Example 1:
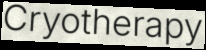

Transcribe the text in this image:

Cryotherapy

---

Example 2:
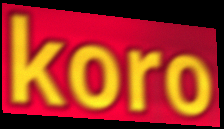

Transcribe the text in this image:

koro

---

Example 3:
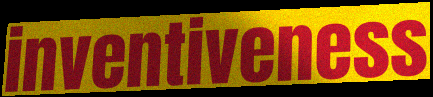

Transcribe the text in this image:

inventiveness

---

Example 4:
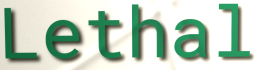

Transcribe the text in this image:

Lethal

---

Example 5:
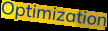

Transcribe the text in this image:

Optimization